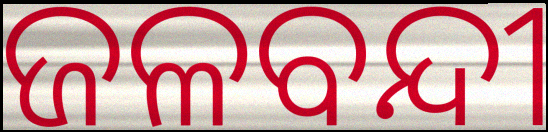
ଜଳବନ୍ଦୀ